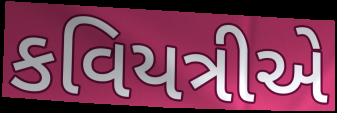
કવિયત્રીએ